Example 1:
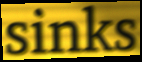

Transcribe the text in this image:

sinks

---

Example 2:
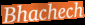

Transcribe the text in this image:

Bhachech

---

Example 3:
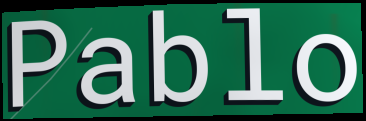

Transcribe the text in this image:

Pablo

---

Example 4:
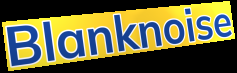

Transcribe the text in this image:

Blanknoise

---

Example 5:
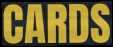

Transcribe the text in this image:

CARDS